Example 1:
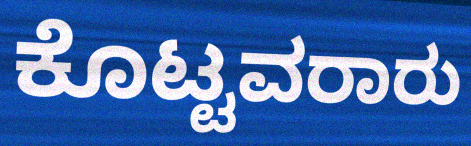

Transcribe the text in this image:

ಕೊಟ್ಟವರಾರು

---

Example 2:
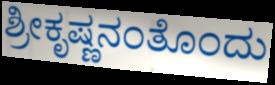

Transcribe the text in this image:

ಶ್ರೀಕೃಷ್ಣನಂತೊಂದು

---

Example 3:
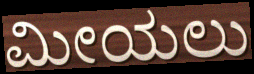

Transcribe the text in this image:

ಮೀಯಲು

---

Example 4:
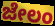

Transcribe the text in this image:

ಜೇಲಂ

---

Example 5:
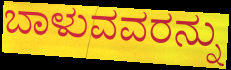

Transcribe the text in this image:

ಬಾಳುವವರನ್ನು